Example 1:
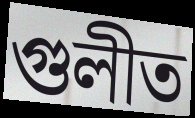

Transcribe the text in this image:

গুলীত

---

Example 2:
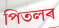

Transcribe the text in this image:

পিতলৰ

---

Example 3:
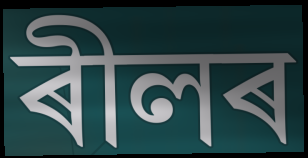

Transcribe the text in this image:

ৰীলৰ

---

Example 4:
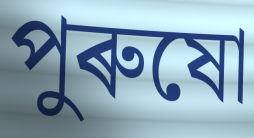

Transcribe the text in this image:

পুৰুষো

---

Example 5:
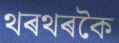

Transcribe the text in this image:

থৰথৰকৈ